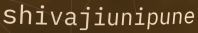
shivajiunipune